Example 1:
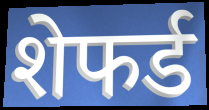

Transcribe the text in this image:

शेफर्ड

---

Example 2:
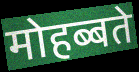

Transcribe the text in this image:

मोहब्बते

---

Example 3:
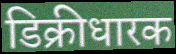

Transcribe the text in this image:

डिक्रीधारक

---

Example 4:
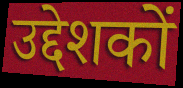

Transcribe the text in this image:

उद्देशकों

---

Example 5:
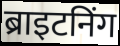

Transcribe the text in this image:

ब्राइटनिंग